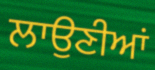
ਲਾਉਣੀਆਂ